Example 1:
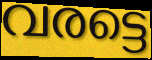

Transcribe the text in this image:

വരട്ടെ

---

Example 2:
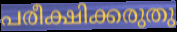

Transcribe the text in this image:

പരീക്ഷിക്കരുതു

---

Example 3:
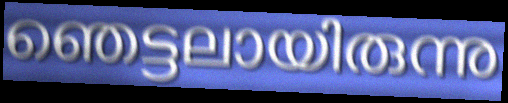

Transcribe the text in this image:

ഞെട്ടലായിരുന്നു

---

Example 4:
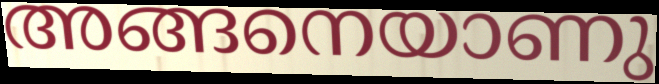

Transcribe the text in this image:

അങ്ങനെയാണു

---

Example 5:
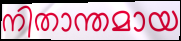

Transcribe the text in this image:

നിതാന്തമായ